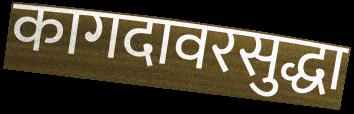
कागदावरसुद्धा